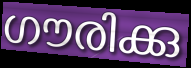
ഗൗരിക്കു